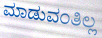
ಮಾಡುವಂತಿಲ್ಲ